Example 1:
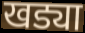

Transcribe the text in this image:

खड्या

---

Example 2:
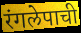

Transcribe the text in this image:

रंगलेपाची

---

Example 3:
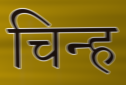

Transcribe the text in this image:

चिन्ह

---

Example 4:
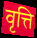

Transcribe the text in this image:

वृत्ति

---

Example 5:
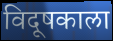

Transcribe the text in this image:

विदूषकाला